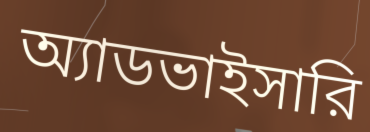
অ্যাডভাইসারি